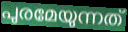
പുരമേയുന്നത്